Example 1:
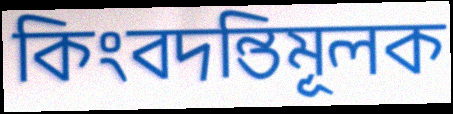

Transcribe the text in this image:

কিংবদন্তিমূলক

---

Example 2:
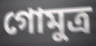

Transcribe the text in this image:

গোমুত্ৰ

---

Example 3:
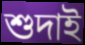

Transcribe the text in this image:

শুদাই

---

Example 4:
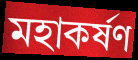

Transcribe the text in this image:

মহাকৰ্ষণ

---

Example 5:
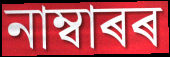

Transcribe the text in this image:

নাম্বাৰৰ